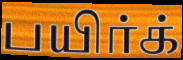
பயிர்க்